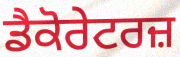
ਡੈਕੋਰੇਟਰਜ਼